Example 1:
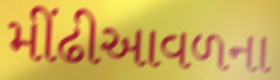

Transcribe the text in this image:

મીંઢીઆવળના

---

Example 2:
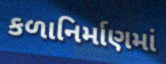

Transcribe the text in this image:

કળાનિર્માણમાં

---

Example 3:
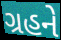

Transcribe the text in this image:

ગ્રહને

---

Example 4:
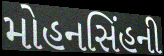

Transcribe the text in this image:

મોહનસિંહની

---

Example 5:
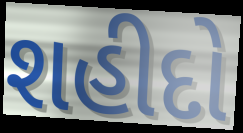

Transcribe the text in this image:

શહીદો